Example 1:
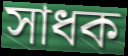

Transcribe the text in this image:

সাধক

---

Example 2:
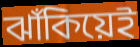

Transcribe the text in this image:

ঝাঁকিয়েই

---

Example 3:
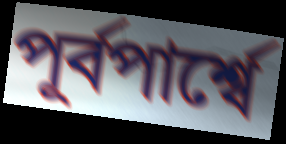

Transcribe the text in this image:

পূর্বপার্শ্বে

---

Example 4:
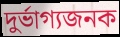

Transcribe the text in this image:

দুর্ভাগ্যজনক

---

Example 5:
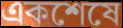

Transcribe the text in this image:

একশেষে